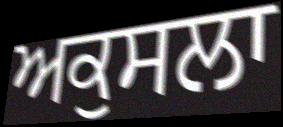
ਅਕੁਸਲਾ